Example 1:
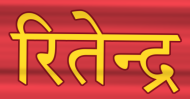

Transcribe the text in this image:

रितेन्द्र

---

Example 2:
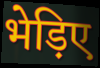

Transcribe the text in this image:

भेड़िए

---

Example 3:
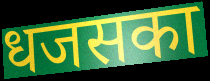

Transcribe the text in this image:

धजसका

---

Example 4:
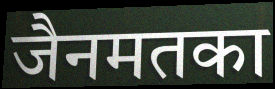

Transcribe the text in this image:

जैनमतका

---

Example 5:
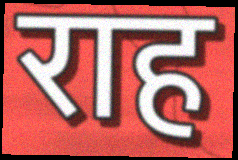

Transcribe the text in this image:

राह